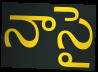
నాసై